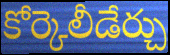
కోర్కెలీడేర్చు